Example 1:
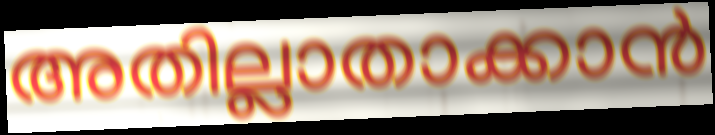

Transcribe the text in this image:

അതില്ലാതാക്കാൻ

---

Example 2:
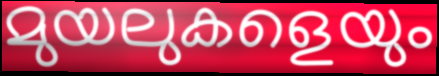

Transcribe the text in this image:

മുയലുകളെയും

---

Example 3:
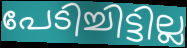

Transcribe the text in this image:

പേടിച്ചിട്ടില്ല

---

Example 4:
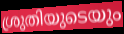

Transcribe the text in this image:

ശ്രുതിയുടെയും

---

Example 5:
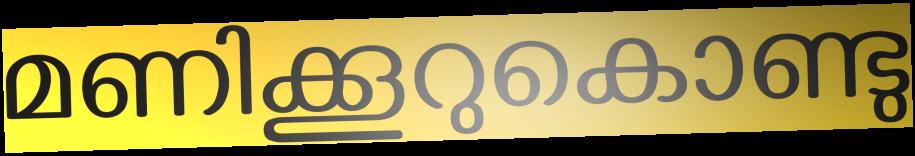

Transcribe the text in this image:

മണിക്കൂറുകൊണ്ടു